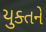
યુક્તને